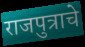
राजपुत्राचे